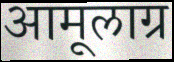
आमूलाग्र